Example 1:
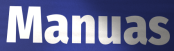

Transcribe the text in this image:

Manuas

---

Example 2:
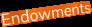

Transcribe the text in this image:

Endowments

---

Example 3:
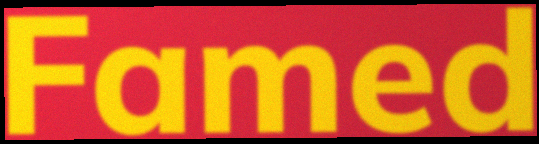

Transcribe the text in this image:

Famed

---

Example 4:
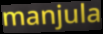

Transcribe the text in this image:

manjula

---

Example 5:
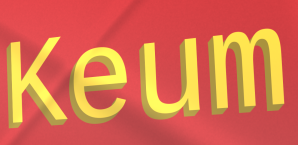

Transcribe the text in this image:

Keum